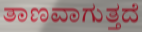
ತಾಣವಾಗುತ್ತದೆ